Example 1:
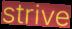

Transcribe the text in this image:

strive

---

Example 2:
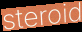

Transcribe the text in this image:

steroid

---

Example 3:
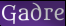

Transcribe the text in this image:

Gadre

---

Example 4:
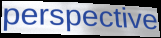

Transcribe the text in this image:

perspective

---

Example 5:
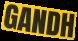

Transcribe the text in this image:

GANDH